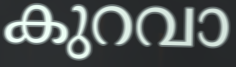
കുറവാ